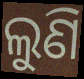
ଲୁଣି